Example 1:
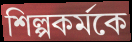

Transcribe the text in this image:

শিল্পকর্মকে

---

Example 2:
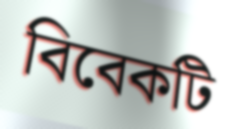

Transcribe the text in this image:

বিবেকটি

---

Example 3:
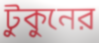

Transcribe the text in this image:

টুকুনের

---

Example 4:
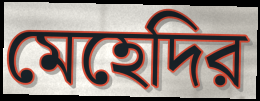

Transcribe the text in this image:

মেহেদির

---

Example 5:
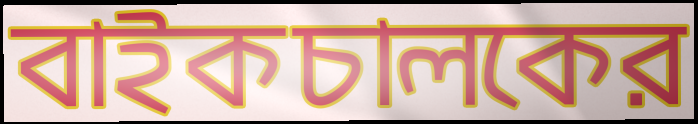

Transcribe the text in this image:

বাইকচালকের